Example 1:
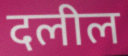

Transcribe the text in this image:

दलील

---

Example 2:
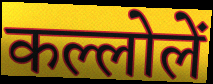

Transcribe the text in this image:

कल्लोलें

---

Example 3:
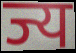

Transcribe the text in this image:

ज्य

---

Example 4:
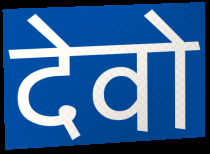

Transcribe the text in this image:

देवो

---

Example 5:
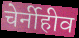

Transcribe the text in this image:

चेर्नीहीव